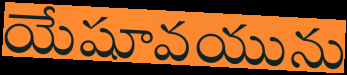
యేషూవయును